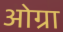
ओग्रा